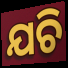
ଯଚି